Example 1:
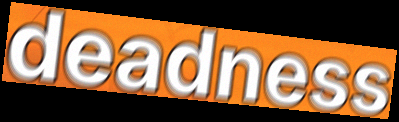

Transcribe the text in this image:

deadness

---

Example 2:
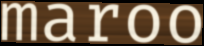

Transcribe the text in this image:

maroo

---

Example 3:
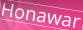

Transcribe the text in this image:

Honawar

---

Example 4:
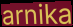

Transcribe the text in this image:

arnika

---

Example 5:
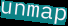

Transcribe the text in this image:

unmap